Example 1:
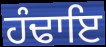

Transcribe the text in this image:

ਹੰਢਾਇ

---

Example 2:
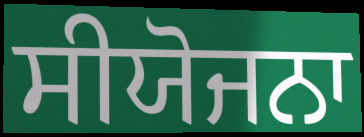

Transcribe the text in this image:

ਸੀਯੋਜਨਾ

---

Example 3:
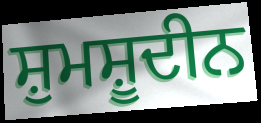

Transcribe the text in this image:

ਸ਼ੁਮਸ਼ੂਦੀਨ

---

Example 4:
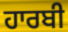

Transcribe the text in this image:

ਹਾਰਬੀ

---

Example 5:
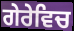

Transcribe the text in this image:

ਗੇਰੇਵਿਚ